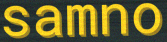
samno